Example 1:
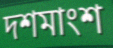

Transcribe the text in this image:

দশমাংশ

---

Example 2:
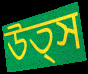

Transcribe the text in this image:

উত্স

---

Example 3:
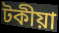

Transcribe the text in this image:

টকীয়া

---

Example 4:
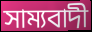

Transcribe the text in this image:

সাম্যবাদী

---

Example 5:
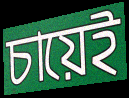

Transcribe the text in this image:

চায়েই